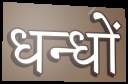
धन्धों